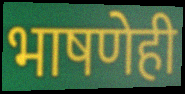
भाषणेही